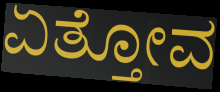
ಏತ್ತೋವ